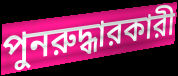
পুনরুদ্ধারকারী